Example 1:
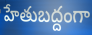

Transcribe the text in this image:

హేతుబద్దంగా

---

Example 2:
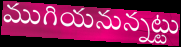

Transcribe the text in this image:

ముగియనున్నట్టు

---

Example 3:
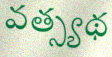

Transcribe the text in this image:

వత్స్యథ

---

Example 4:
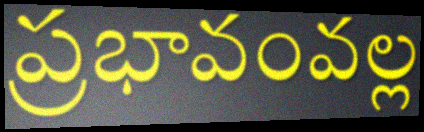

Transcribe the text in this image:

ప్రభావంవల్ల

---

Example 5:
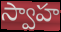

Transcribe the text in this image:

స్వాహ